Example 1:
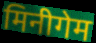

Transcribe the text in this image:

मिनीगेम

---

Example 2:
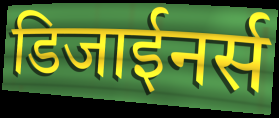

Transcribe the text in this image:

डिजाईनर्स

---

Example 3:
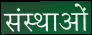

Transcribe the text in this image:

संस्थाओं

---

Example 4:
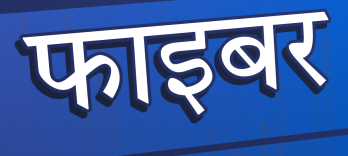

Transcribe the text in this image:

फाइबर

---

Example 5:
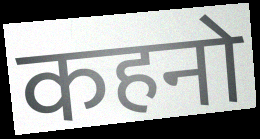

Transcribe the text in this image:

कहनो